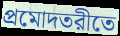
প্রমোদতরীতে